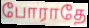
போராதே